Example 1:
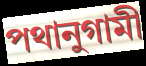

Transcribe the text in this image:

পথানুগামী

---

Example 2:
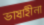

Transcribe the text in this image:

ভাষাহীনা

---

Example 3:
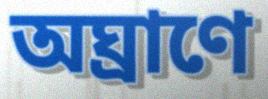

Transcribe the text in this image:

অঘ্রাণে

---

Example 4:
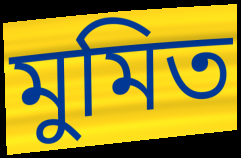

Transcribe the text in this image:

মুমিত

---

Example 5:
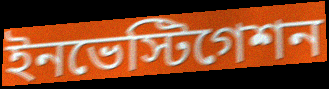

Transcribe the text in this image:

ইনভেস্টিগেশন